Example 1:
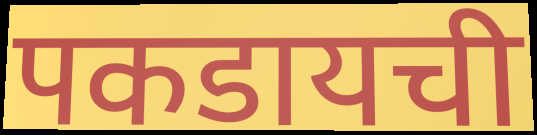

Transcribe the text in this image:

पकडायची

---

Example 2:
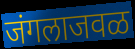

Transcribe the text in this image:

जंगलाजवळ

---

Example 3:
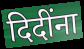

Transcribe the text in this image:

दिदींना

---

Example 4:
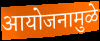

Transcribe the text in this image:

आयोजनामुळे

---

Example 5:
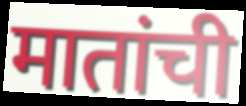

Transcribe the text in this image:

मातांची